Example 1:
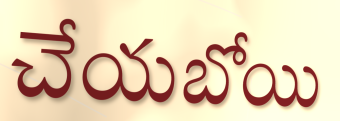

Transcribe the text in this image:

చేయబోయి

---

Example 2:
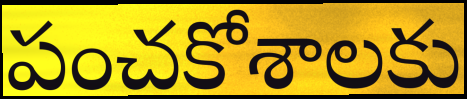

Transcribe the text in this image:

పంచకోశాలకు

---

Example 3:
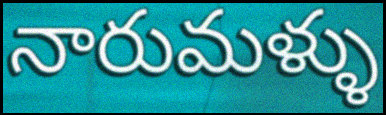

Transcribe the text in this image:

నారుమళ్ళు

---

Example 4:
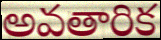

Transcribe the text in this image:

అవతారిక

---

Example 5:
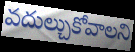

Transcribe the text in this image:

వదుల్చుకోవాలని